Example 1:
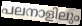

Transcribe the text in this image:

പലനാളിലും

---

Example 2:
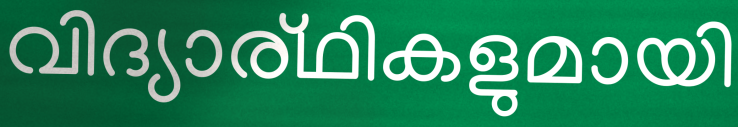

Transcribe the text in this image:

വിദ്യാര്ഥികളുമായി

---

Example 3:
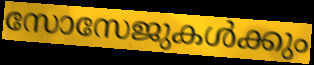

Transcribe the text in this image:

സോസേജുകൾക്കും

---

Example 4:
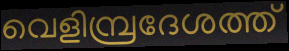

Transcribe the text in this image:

വെളിമ്പ്രദേശത്ത്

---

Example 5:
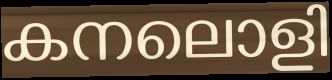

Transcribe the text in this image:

കനലൊളി